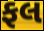
ફલ